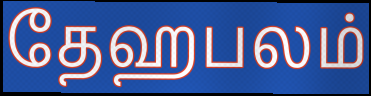
தேஹபலம்